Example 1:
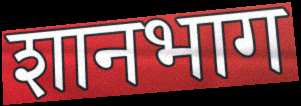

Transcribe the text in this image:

शानभाग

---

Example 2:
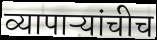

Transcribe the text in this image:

व्यापाऱ्यांचीच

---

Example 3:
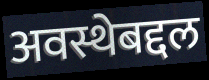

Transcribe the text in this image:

अवस्थेबद्दल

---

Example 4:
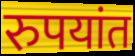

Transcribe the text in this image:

रुपयांत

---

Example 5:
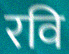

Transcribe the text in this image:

रवि